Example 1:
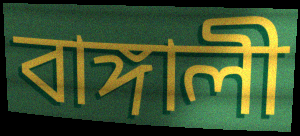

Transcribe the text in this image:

বাঙ্গালী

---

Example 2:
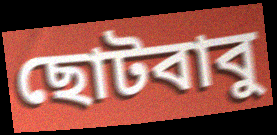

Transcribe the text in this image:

ছোটবাবু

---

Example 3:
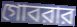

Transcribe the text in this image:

গোবরার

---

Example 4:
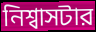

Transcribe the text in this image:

নিশ্বাসটার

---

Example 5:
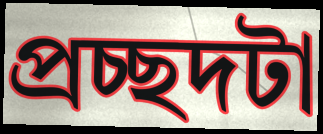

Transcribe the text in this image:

প্রচ্ছদটা